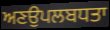
ਅਣਉਪਲਬਧਤਾ